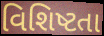
વિશિષ્ટતા